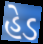
હેડ